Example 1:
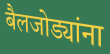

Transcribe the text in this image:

बैलजोड्यांना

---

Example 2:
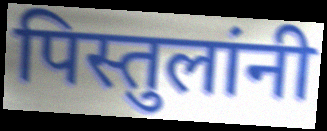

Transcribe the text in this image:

पिस्तुलांनी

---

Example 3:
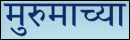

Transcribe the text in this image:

मुरुमाच्या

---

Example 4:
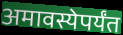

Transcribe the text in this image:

अमावस्येपर्यंत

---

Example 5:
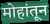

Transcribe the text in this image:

मोहांतून